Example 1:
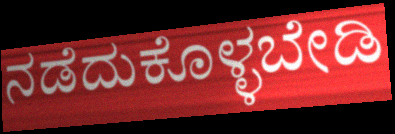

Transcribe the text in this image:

ನಡೆದುಕೊಳ್ಳಬೇಡಿ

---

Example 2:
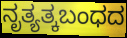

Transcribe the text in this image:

ನೃತ್ಯತ್ಕಬಂಧದ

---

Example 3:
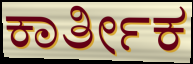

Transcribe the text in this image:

ಕಾರ್ತೀಕ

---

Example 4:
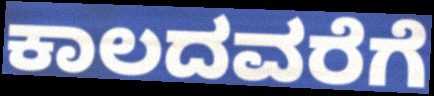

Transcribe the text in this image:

ಕಾಲದವರೆಗೆ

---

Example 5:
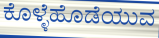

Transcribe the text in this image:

ಕೊಳ್ಳೆಹೊಡೆಯುವ